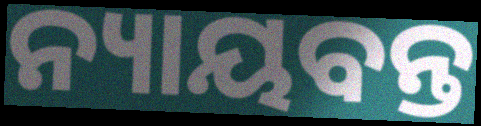
ନ୍ୟାୟବନ୍ତ